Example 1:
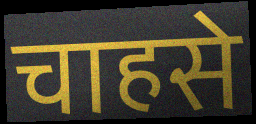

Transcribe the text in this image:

चाहसे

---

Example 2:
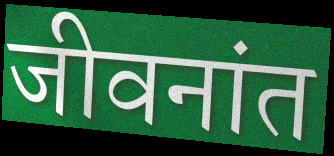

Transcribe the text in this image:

जीवनांत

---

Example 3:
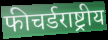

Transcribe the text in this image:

फीचर्डराष्ट्रीय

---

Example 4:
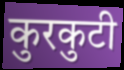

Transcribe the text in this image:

कुरकुटी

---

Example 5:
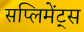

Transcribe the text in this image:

सप्लिमेंट्स